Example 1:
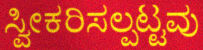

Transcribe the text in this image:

ಸ್ವೀಕರಿಸಲ್ಪಟ್ಟವು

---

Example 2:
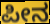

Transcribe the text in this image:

ಪೀನ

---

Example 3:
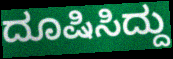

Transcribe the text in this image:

ದೂಷಿಸಿದ್ದು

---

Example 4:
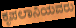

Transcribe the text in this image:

ಕೃಪಲಾನಿಯವರು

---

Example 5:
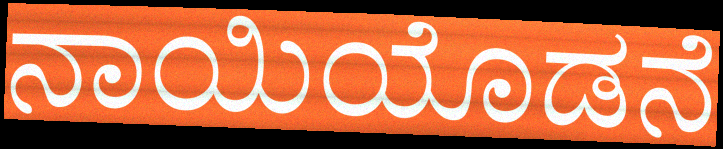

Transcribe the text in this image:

ನಾಯಿಯೊಡನೆ